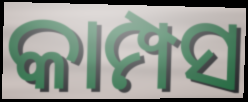
କାମ୍ପସ